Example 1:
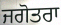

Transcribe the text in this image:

ਜਗੋਤਰਾ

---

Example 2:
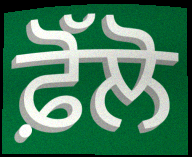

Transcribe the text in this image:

ਫ਼ੋੱਲੋ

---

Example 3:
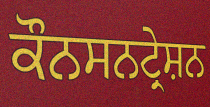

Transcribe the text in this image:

ਕੌਨਸਨਟ੍ਰੇਸ਼ਨ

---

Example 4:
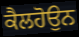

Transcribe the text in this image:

ਕੈਲਹੋਉਨ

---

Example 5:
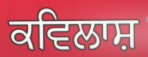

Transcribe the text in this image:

ਕਵਿਲਾਸ਼